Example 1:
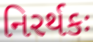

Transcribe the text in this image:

નિરર્થકઃ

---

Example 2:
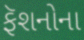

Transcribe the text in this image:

ફૅશનોના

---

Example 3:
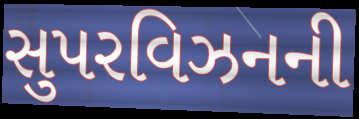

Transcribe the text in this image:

સુપરવિઝનની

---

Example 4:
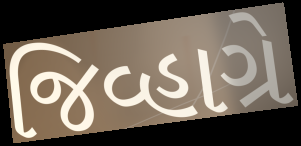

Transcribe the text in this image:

જિવ્હાગ્રે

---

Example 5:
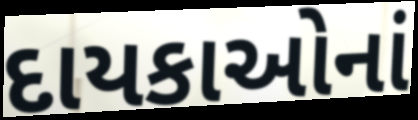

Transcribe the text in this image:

દાયકાઓનાં